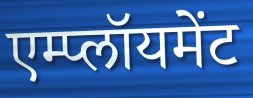
एम्प्लॉयमेंट